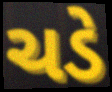
ચડે